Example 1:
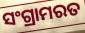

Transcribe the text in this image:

ସଂଗ୍ରାମରତ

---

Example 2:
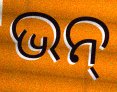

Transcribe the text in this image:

ଭନ୍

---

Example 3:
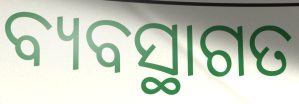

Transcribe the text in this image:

ବ୍ଯବସ୍ଥାଗତ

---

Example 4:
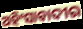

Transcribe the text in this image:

ଅହିଂସାବାଦୀର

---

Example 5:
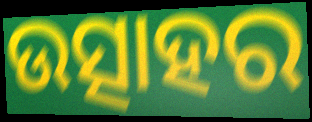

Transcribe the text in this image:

ଉତ୍ସାହର